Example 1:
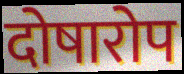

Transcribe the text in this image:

दोषारोप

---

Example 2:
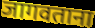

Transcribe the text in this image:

जागवताना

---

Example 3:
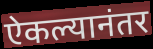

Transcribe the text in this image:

ऐकल्यानंतर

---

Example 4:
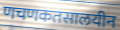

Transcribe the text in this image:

णचणकतसालयीन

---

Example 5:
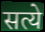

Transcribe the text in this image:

सत्ये